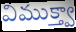
విముక్త్వా